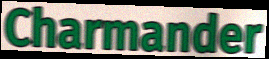
Charmander